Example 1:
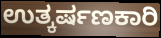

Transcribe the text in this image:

ಉತ್ಕರ್ಷಣಕಾರಿ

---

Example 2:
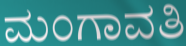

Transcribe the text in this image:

ಮಂಗಾವತಿ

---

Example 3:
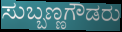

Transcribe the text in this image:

ಸುಬ್ಬಣ್ಣಗೌಡರು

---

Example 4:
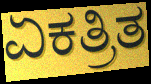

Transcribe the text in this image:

ಏಕತ್ರಿತ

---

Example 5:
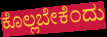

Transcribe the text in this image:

ಕೊಲ್ಲಬೇಕೆಂದು